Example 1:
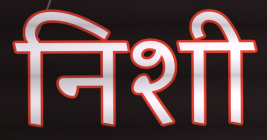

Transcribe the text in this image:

निशी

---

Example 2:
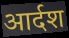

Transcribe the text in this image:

आर्दश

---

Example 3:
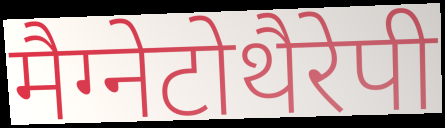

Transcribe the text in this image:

मैग्नेटोथैरेपी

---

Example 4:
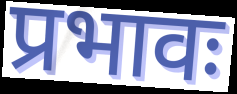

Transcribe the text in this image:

प्रभावः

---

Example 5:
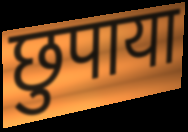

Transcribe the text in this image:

छुपाया